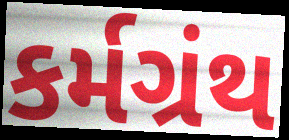
કર્મગ્રંથ